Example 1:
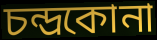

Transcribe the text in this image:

চন্দ্রকোনা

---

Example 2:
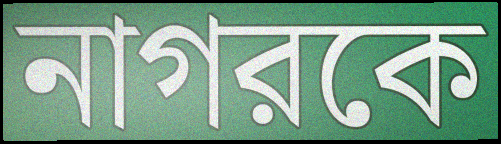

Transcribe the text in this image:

নাগরকে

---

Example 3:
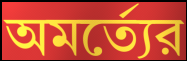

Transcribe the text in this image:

অমর্ত্যের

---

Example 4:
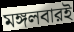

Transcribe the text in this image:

মঙ্গলবারই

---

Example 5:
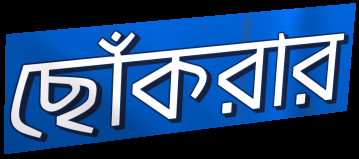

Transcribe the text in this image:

ছোঁকরার